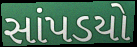
સાંપડયો